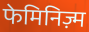
फेमिनिज़्म